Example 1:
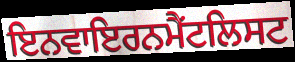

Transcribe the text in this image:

ਇਨਵਾਇਰਨਮੈਂਟਲਿਸਟ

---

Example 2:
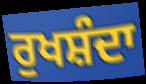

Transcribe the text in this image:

ਰੁਖਸ਼ੰਦਾ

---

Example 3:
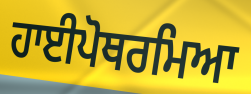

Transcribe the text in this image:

ਹਾਈਪੋਥਰਮਿਆ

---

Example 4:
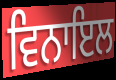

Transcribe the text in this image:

ਵਿਨਾਇਲ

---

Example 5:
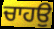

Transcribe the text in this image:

ਚਾਹਉ